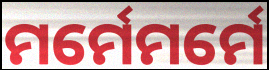
ମର୍ମେମର୍ମେ